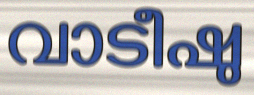
വാടീഷു